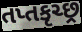
તપ્તકૃચ્છ્ર